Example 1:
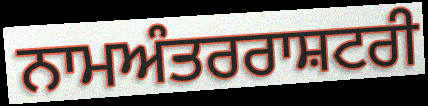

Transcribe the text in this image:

ਨਾਮਅੰਤਰਰਾਸ਼ਟਰੀ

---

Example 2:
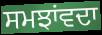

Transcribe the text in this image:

ਸਮਝਾਂਵਦਾ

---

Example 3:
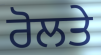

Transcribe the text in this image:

ਰੋਲਤੇ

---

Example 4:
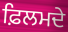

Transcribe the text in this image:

ਫ਼ਿਲਮਦੇ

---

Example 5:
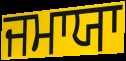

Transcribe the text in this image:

ਜਮਾਯਾ